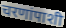
चरणांपाशी